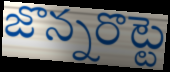
జొన్నరొట్టె